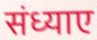
संध्याए